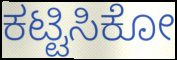
ಕಟ್ಟಿಸಿಕೋ